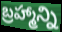
బ్రహ్మాన్ని